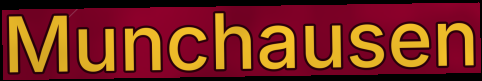
Munchausen